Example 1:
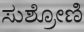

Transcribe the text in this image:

ಸುಶ್ರೋಣಿ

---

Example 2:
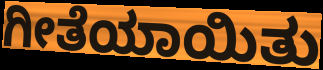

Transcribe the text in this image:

ಗೀತೆಯಾಯಿತು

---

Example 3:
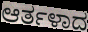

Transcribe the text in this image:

ಆರ್ತಳಾದ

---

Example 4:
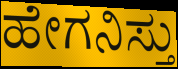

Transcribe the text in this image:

ಹೇಗನಿಸ್ತು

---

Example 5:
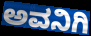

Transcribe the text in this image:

ಅವನಿಗಿ